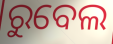
ରୁବେଲ